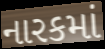
નારકમાં